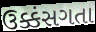
ઉક્કંસગતા